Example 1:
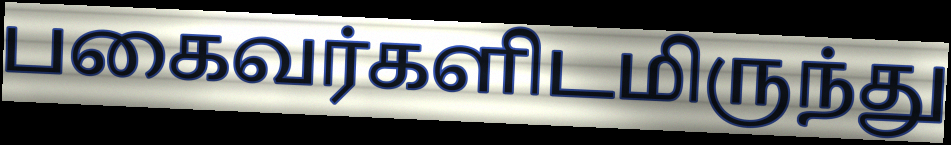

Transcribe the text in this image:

பகைவர்களிடமிருந்து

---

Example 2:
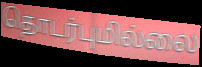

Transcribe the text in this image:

தொடர்புமில்லை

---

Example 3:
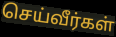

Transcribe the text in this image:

செய்வீர்கள்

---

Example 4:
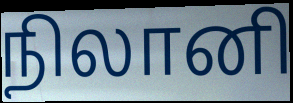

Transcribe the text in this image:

நிலானி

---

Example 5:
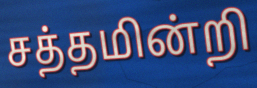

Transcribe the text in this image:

சத்தமின்றி